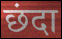
छंदा